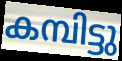
കമ്പിട്ടു